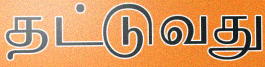
தட்டுவது